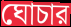
ঘোচার